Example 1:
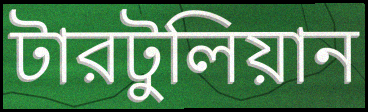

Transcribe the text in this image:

টারটুলিয়ান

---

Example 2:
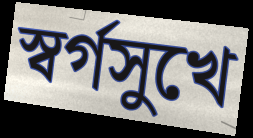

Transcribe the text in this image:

স্বর্গসুখে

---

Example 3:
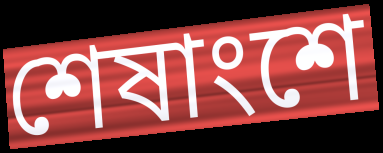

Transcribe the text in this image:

শেষাংশে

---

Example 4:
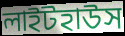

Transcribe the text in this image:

লাইটহাউস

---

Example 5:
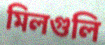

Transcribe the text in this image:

মিলগুলি